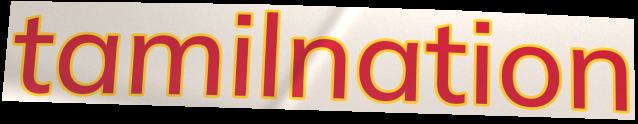
tamilnation